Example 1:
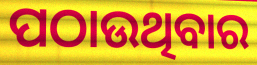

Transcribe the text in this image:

ପଠାଉଥିବାର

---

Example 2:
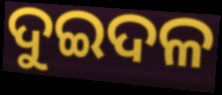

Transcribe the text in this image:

ଦୁଇଦଳ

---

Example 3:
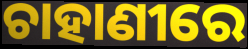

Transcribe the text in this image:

ଚାହାଣୀରେ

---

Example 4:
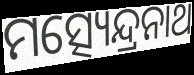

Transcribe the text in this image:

ମତ୍ସ୍ୟେନ୍ଦ୍ରନାଥ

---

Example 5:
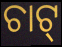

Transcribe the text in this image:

ଚାଟ୍